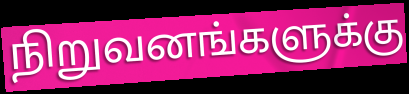
நிறுவனங்களுக்கு